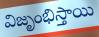
విజృంభిస్తాయి